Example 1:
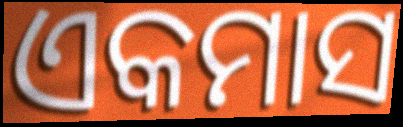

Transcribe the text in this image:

ଏକମାସ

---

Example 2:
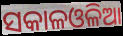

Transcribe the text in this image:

ସକାଳଓଳିଆ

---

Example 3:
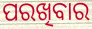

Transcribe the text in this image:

ପରଖିବାର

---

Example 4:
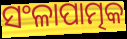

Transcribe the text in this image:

ସଂଳାପାତ୍ମକ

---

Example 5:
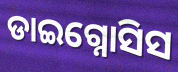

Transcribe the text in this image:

ଡାଇଗ୍ନୋସିସ